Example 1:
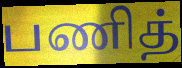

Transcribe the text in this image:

பணித்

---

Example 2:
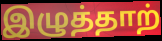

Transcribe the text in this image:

இழுத்தாற்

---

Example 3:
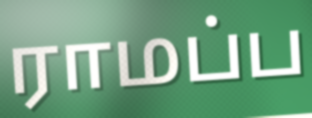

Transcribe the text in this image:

ராமப்ப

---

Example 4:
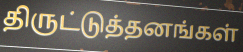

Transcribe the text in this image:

திருட்டுத்தனங்கள்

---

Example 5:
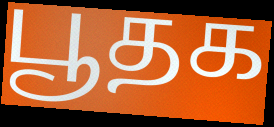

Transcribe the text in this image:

பூதக